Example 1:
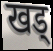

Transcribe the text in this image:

खड्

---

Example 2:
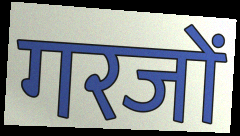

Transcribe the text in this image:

गरजों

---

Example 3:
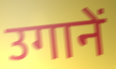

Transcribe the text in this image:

उगानें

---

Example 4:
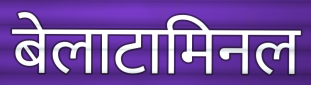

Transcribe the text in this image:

बेलाटामिनल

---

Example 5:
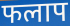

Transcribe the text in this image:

फलाप